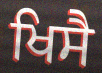
ਖਿਸੈ